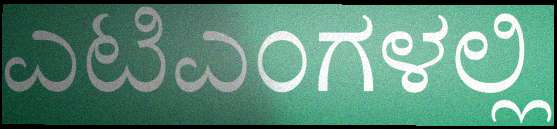
ಎಟಿಎಂಗಳಲ್ಲಿ